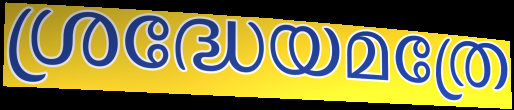
ശ്രദ്ധേയമത്രേ